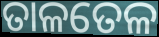
ତାଳତେଳ